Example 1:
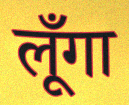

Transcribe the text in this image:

लूँगा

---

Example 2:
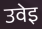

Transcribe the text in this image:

उवेइ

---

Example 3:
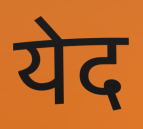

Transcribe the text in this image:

येद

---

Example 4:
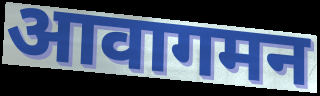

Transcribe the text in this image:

आवागमन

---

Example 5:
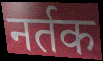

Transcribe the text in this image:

नर्तक